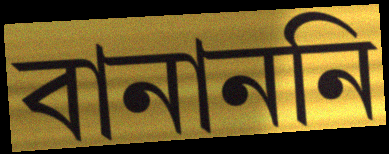
বানাননি